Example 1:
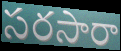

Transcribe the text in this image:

సరసారా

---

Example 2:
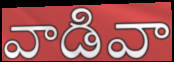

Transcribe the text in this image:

వాడివా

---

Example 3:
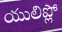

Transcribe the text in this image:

యులిప్లో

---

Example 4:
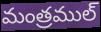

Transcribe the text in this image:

మంత్రముల్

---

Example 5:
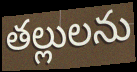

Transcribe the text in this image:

తల్లులను